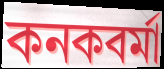
কনকবর্মা